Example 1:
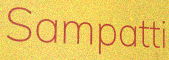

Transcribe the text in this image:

Sampatti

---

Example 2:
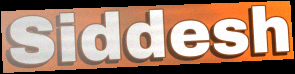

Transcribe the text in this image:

Siddesh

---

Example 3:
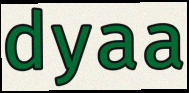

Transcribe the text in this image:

dyaa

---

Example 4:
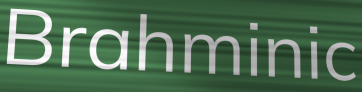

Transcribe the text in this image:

Brahminic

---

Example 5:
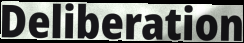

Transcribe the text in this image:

Deliberation